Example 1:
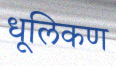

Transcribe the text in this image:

धूलिकण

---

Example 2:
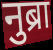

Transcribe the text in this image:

नुब्रा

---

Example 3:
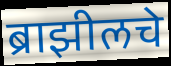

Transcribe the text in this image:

ब्राझीलचे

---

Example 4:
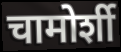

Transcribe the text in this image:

चामोर्शी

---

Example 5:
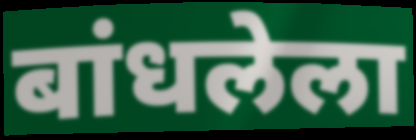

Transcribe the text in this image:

बांधलेला